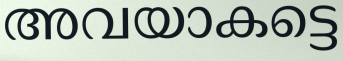
അവയാകട്ടെ